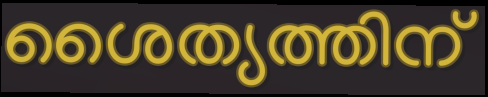
ശൈത്യത്തിന്